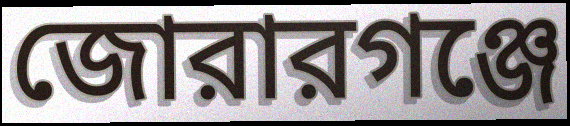
জোরারগঞ্জে